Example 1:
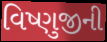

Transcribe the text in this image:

વિષ્ણુજીની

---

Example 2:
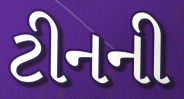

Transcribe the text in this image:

ટીનની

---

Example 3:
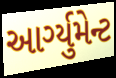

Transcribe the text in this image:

આર્ગ્યુમેન્ટ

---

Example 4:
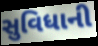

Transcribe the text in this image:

સુવિધાની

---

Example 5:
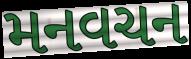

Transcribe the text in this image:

મનવચન